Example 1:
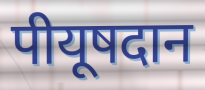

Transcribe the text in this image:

पीयूषदान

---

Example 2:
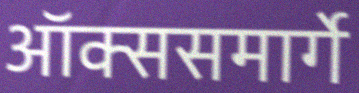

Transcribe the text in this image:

ऑक्ससमार्गे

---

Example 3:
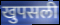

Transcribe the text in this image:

खुपसली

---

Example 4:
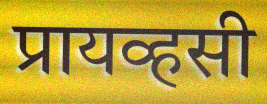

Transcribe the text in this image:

प्रायव्हसी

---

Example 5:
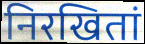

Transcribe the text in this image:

निरखितां